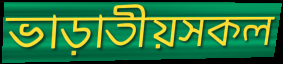
ভাড়াতীয়সকল